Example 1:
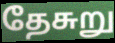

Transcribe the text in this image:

தேசுறு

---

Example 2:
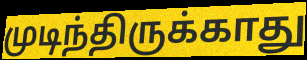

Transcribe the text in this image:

முடிந்திருக்காது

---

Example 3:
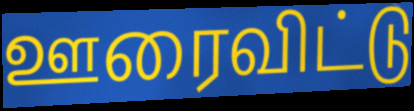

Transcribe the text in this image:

ஊரைவிட்டு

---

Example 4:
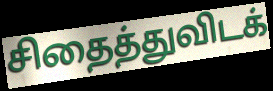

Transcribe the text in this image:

சிதைத்துவிடக்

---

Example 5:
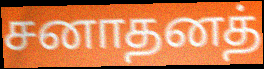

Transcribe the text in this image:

சனாதனத்